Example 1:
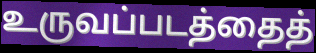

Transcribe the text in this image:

உருவப்படத்தைத்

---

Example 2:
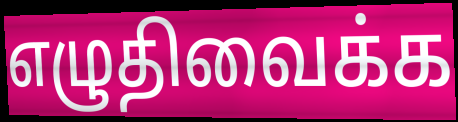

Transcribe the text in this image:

எழுதிவைக்க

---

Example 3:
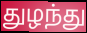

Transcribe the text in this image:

துழந்து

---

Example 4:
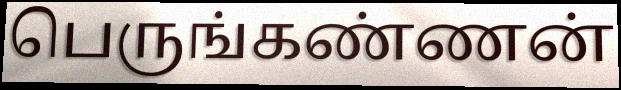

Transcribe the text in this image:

பெருங்கண்ணன்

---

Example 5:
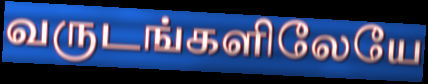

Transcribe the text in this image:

வருடங்களிலேயே